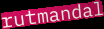
rutmandal